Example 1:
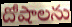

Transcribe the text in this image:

దోషాలను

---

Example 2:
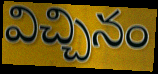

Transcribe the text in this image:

విచ్చినం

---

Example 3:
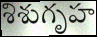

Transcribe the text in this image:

శిశుగృహ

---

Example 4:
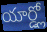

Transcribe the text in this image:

యార్డ్లో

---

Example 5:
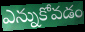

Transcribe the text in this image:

ఎన్నుకోవడం